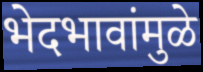
भेदभावांमुळे